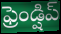
ఫ్రెండ్షిప్